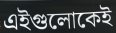
এইগুলোকেই